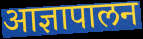
आज्ञापालन